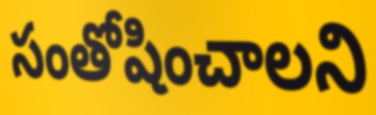
సంతోషించాలని